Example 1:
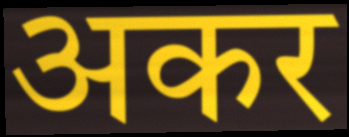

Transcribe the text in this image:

अकर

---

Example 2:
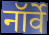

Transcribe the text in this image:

नॉर्वे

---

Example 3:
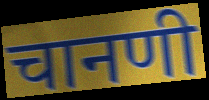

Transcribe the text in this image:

चानणी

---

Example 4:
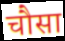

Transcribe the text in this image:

चौसा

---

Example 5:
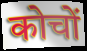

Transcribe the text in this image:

कोचों